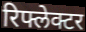
रिफ्लेक्टर